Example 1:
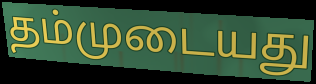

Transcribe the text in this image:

தம்முடையது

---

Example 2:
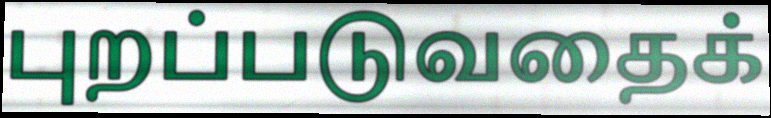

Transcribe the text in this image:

புறப்படுவதைக்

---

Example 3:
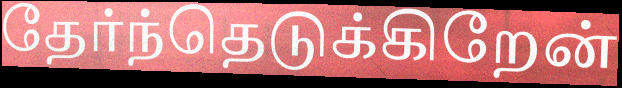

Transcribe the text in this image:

தேர்ந்தெடுக்கிறேன்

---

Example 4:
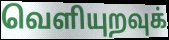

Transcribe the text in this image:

வெளியுறவுக்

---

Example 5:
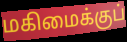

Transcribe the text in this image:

மகிமைக்குப்